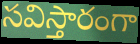
సవిస్తారంగా